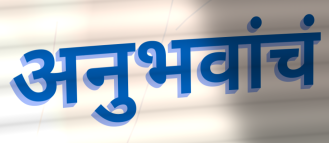
अनुभवांचं